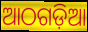
ଆଠଗଡ଼ିଆ